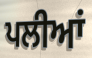
ਪਲੀਆਂ